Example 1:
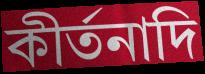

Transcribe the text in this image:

কীর্তনাদি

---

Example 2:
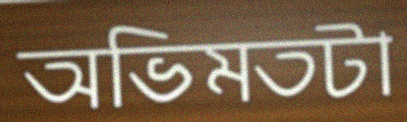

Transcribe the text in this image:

অভিমতটা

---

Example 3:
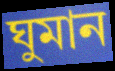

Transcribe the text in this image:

ঘুমান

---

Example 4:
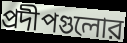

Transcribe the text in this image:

প্রদীপগুলোর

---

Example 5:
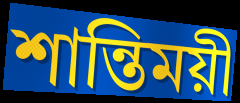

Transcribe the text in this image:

শান্তিময়ী